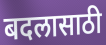
बदलासाठी